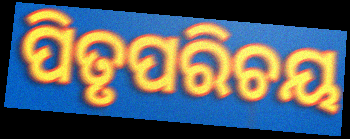
ପିତୃପରିଚୟ